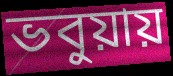
ভবুয়ায়